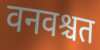
वनवश्चत